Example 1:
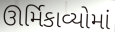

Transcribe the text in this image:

ઊર્મિકાવ્યોમાં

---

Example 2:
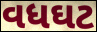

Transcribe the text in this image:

વધઘટ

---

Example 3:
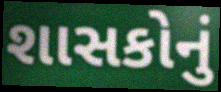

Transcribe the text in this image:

શાસકોનું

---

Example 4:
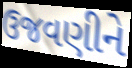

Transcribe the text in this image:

ઉજવણીને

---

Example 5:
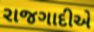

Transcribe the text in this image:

રાજગાદીએ